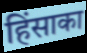
हिंसाका